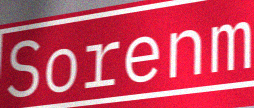
Sorenm